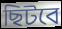
ছিটবে